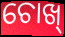
ଚୋଖ୍